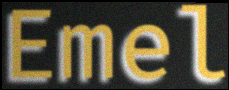
Emel